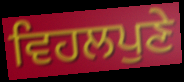
ਵਿਹਲਪੁਣੇ